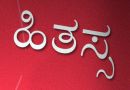
ಹಿತಸ್ಸ